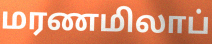
மரணமிலாப்